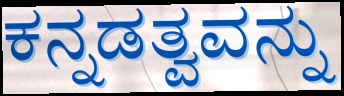
ಕನ್ನಡತ್ವವನ್ನು